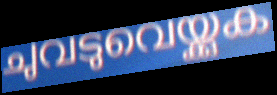
ചുവടുവെയ്ക്കുക